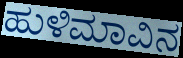
ಹುಳಿಮಾವಿನ